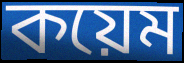
কয়েম